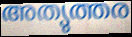
അത്യുത്തര